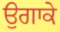
ਉਗਾਕੇ